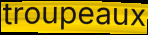
troupeaux